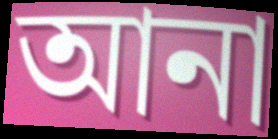
আনা